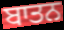
ਬਾਤਨ